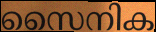
സൈനിക